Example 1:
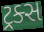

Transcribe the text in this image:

ટ્રક્સ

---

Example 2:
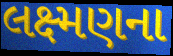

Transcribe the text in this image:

લક્ષ્મણના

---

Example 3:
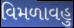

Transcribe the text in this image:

વિમળાવહુ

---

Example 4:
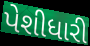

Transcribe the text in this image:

પેશીધારી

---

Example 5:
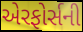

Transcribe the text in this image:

એરફોર્સની